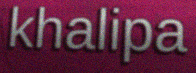
khalipa